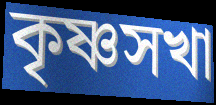
কৃষ্ণসখা